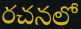
రచనలో